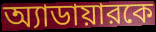
অ্যাডায়ারকে